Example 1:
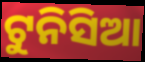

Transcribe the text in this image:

ଟୁନିସିଆ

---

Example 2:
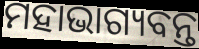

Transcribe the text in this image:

ମହାଭାଗ୍ୟବନ୍ତ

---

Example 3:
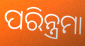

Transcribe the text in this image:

ପରିନ୍ତ୍ରମା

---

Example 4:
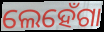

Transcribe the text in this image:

ଲେହେଁଗା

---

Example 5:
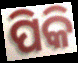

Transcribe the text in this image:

ପିକି